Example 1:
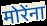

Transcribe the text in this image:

मोरेंना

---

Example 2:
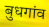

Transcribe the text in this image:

बुधगांव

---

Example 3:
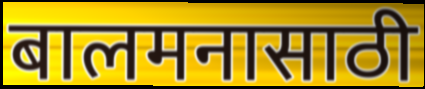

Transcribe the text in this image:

बालमनासाठी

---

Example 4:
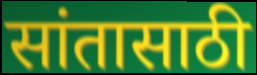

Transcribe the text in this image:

सांतासाठी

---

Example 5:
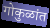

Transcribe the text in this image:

गोकुळांत